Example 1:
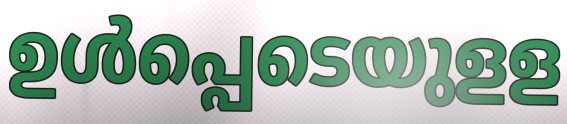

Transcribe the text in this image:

ഉൾപ്പെടെയുളള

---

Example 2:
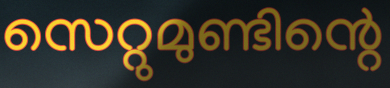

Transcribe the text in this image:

സെറ്റുമുണ്ടിന്റെ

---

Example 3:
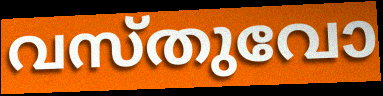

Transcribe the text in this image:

വസ്തുവോ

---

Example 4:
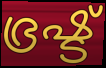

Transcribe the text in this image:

ഭ്രഷ്ട്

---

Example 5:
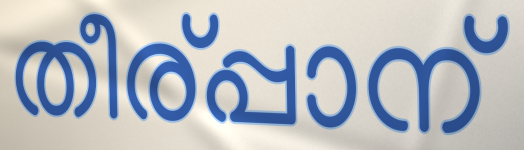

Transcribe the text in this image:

തീര്പ്പാന്